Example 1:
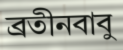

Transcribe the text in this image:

ব্রতীনবাবু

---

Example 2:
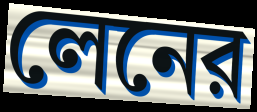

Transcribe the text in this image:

লেনের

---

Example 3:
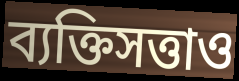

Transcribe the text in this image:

ব্যক্তিসত্তাও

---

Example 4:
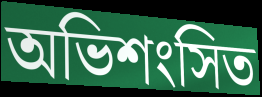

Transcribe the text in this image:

অভিশংসিত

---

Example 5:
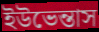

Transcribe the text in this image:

ইউভেন্তাস